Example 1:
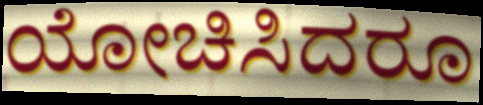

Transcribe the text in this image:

ಯೋಚಿಸಿದರೂ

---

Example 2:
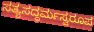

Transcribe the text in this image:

ಸತ್ಯಸದ್ಧರ್ಮಸ್ವರೂಪ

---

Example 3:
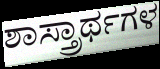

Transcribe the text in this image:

ಶಾಸ್ತ್ರಾರ್ಥಗಳ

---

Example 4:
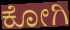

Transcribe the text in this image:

ಕೋಗಿ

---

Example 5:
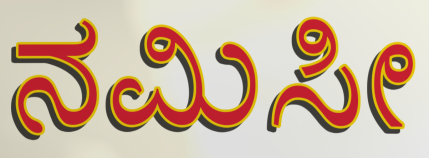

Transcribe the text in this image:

ನಮಿಸೀ